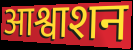
आश्वाशन